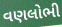
વણલોભી